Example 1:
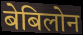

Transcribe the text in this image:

बेबिलोन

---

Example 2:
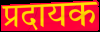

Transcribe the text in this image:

प्रदायक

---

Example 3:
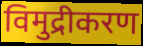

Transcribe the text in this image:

विमुद्रीकरण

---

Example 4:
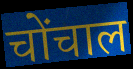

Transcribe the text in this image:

चोंचाल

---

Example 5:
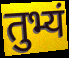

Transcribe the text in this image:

तुभ्यं